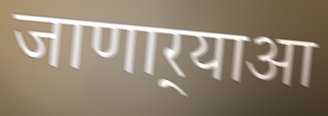
जाणार्याआ